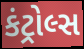
કંટ્રોલ્સ